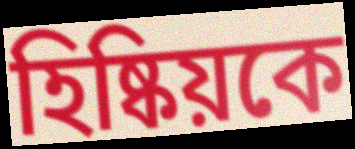
হিষ্কিয়কে